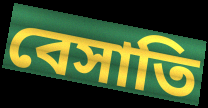
বেসাতি